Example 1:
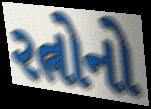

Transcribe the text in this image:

રત્નોનો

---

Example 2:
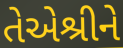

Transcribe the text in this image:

તેએશ્રીને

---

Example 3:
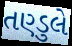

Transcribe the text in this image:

તણ્ડુલે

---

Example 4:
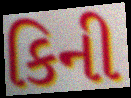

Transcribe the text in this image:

કિની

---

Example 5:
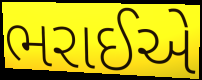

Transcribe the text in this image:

ભરાઈએ